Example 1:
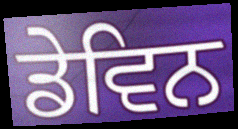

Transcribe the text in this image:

ਡੇਵਿਨ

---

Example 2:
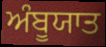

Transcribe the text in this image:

ਅੰਬੂਯਾਤ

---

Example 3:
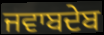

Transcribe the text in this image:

ਜਵਾਬਦੇਬ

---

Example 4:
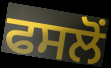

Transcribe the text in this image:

ਫਸਲੋਂ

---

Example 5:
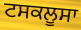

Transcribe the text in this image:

ਟਸਕਲੂਸਾ